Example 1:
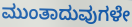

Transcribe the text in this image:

ಮುಂತಾದುವುಗಳೇ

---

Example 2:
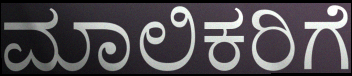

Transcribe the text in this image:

ಮಾಲಿಕರಿಗೆ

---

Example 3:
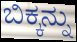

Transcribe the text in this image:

ಬಿಕ್ಕನ್ನು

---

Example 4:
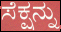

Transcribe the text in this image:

ಸೆಕ್ಷನ್ನು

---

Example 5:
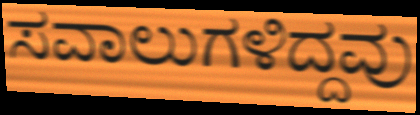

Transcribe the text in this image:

ಸವಾಲುಗಳಿದ್ದವು